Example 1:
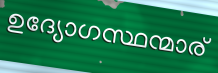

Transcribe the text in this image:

ഉദ്യോഗസ്ഥന്മാര്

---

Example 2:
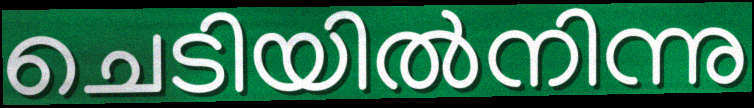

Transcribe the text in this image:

ചെടിയിൽനിന്നു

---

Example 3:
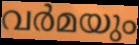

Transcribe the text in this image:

വർമയും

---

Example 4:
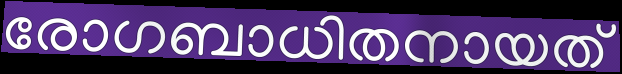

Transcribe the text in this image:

രോഗബാധിതനായത്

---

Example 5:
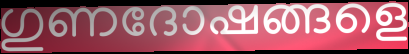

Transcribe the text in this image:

ഗുണദോഷങ്ങളെ